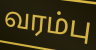
வரம்பு